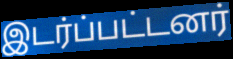
இடர்ப்பட்டனர்